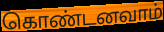
கொண்டனவாம்